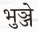
भुञ्जे